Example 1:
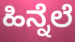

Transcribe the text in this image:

ಹಿನ್ನೆಲೆ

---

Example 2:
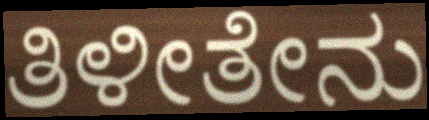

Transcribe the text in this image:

ತಿಳೀತೇನು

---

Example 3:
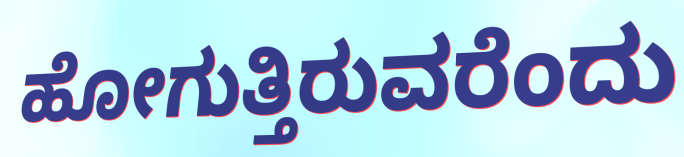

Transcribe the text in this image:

ಹೋಗುತ್ತಿರುವರೆಂದು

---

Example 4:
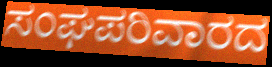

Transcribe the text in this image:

ಸಂಘಪರಿವಾರದ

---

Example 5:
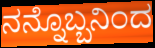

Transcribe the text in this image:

ನನ್ನೊಬ್ಬನಿಂದ